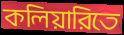
কলিয়ারিতে